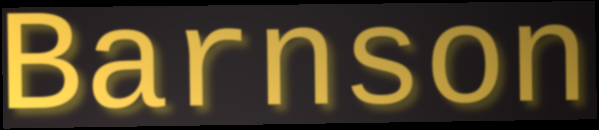
Barnson